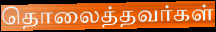
தொலைத்தவர்கள்